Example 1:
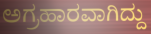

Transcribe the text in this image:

ಅಗ್ರಹಾರವಾಗಿದ್ದು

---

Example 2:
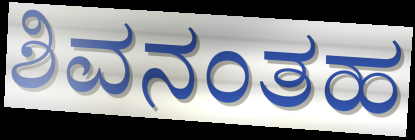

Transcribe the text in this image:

ಶಿವನಂತಹ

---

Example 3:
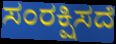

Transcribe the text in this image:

ಸಂರಕ್ಷಿಸದೆ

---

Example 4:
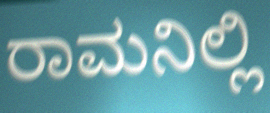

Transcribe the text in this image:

ರಾಮನಿಲ್ಲಿ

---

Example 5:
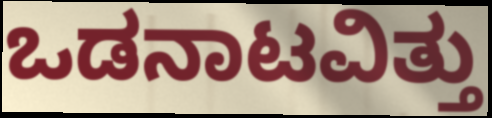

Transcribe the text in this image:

ಒಡನಾಟವಿತ್ತು